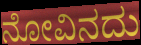
ನೋವಿನದು